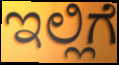
ಇಲ್ಲಿಗೆ